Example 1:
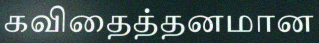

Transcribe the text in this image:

கவிதைத்தனமான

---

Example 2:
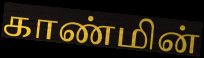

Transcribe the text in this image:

காண்மின்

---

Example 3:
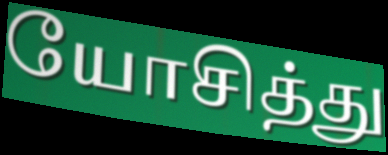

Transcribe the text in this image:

யோசித்து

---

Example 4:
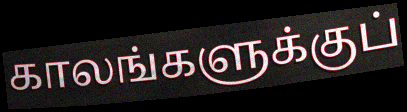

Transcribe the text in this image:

காலங்களுக்குப்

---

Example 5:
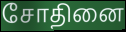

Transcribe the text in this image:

சோதினை